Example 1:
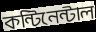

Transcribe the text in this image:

কন্টিনেন্টাল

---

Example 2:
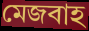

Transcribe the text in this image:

মেজবাহ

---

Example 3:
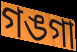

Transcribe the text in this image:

গঙগা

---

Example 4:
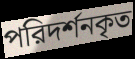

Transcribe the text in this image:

পরিদর্শনকৃত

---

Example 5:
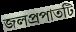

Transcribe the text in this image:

জলপ্রপাতটি